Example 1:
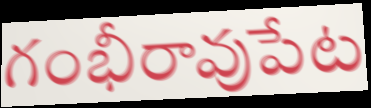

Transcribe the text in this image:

గంభీరావుపేట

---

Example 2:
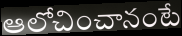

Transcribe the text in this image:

ఆలోచించానంటే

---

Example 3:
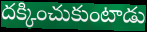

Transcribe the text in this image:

దక్కించుకుంటాడు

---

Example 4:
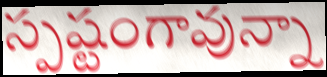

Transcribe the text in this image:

స్పష్టంగావున్నా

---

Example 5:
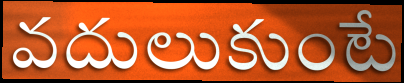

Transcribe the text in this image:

వదులుకుంటే